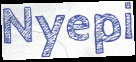
Nyepi